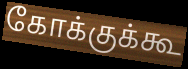
கோக்குக்கூ